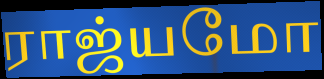
ராஜ்யமோ